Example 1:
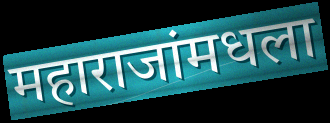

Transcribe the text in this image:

महाराजांमधला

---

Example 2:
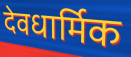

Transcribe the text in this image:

देवधार्मिक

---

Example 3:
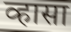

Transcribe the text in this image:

व्हासा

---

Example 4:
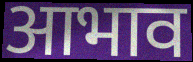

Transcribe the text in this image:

आभाव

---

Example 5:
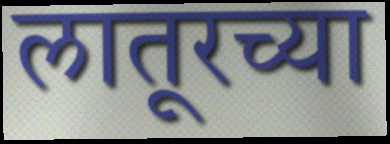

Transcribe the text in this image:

लातूरच्या